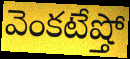
వెంకటేష్తో